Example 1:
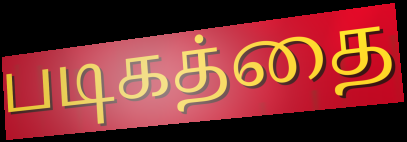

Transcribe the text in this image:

படிகத்தை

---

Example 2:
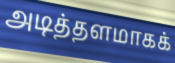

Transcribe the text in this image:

அடித்தளமாகக்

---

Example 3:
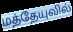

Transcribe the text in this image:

மத்தேயுவில்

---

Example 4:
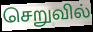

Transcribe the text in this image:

செறுவில்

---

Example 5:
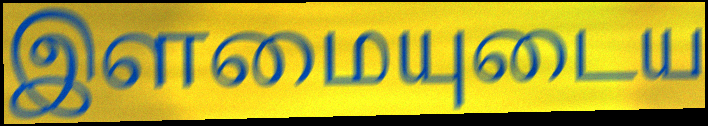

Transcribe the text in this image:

இளமையுடைய